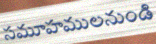
సమూహములనుండి